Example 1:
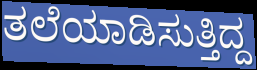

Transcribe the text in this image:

ತಲೆಯಾಡಿಸುತ್ತಿದ್ದ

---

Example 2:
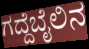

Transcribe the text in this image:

ಗದ್ದೆಬೈಲಿನ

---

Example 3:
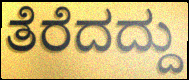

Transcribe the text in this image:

ತೆರೆದದ್ದು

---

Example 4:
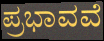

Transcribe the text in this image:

ಪ್ರಭಾವವೆ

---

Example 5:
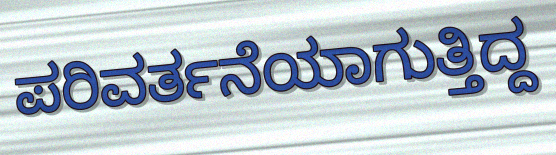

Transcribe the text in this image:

ಪರಿವರ್ತನೆಯಾಗುತ್ತಿದ್ದ